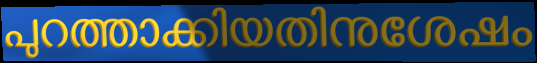
പുറത്താക്കിയതിനുശേഷം